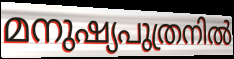
മനുഷ്യപുത്രനിൽ